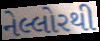
નેલ્લોરથી